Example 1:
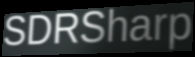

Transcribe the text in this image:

SDRSharp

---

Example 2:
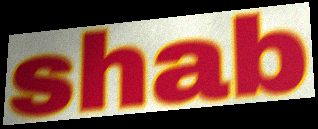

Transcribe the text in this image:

shab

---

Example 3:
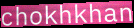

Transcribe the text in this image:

chokhkhan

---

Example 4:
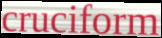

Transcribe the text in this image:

cruciform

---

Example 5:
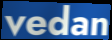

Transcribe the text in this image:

vedan